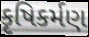
કૃષિકર્મણ